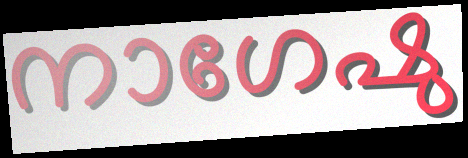
നാഗേഷു